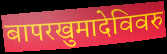
बापरखुमादेविवरु